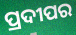
ପ୍ରଦୀପର